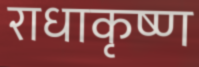
राधाकृष्ण